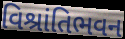
વિશ્રાંતિભવન